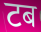
टब